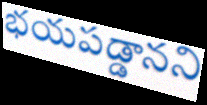
భయపడ్డానని